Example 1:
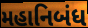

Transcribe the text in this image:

મહાનિબંધ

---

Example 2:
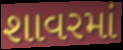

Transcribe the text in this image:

શાવરમાં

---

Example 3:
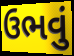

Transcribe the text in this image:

ઉભવું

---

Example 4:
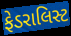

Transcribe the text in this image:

ફેડરાલિસ્ટ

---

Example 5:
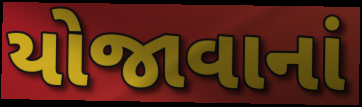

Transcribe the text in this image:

યોજાવાનાં